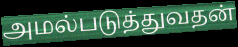
அமல்படுத்துவதன்